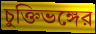
চুক্তিভঙ্গের